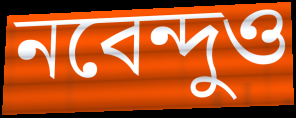
নবেন্দুও